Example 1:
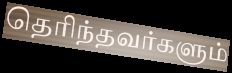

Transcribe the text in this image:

தெரிந்தவர்களும்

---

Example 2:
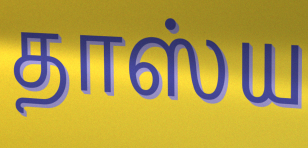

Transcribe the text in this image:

தாஸ்ய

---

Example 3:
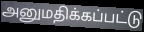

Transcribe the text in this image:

அனுமதிக்கப்பட்டு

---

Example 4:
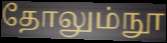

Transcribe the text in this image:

தோலும்நூ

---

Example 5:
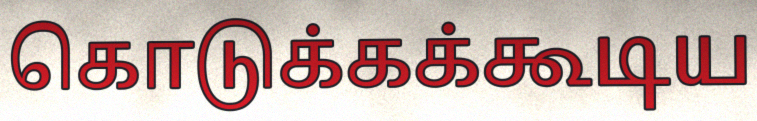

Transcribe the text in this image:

கொடுக்கக்கூடிய